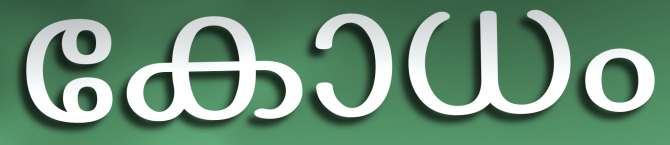
കോധം